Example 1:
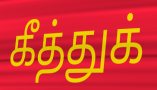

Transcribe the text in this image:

கீத்துக்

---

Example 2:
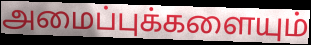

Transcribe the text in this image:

அமைப்புக்களையும்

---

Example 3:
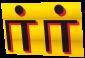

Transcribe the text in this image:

ர்ர்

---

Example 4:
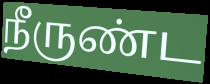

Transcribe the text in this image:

நீருண்ட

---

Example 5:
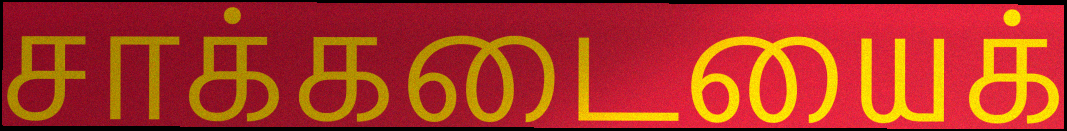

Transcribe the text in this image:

சாக்கடையைக்